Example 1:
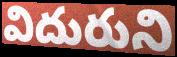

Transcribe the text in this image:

విదురుని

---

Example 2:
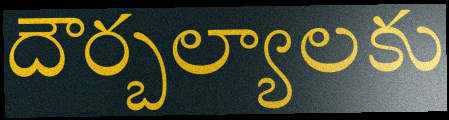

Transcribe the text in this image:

దౌర్బల్యాలకు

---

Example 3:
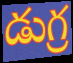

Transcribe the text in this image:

డుగ్ర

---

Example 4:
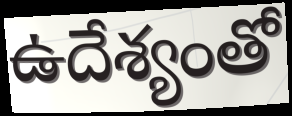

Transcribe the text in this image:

ఉదేశ్యంతో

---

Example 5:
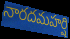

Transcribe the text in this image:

నారదమహర్షి